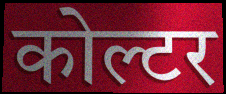
कोल्टर